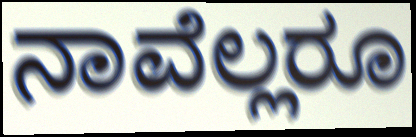
ನಾವೆಲ್ಲರೂ